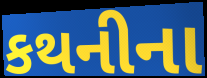
કથનીના